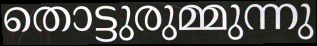
തൊട്ടുരുമ്മുന്നു